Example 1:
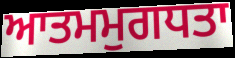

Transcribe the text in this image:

ਆਤਮਮੁਗਧਤਾ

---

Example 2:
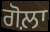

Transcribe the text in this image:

ਗੋਲ਼ਾ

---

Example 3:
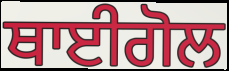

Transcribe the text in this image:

ਥਾਈਗੋਲ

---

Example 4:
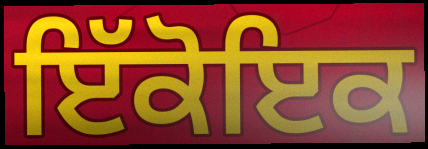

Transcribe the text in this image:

ਇੱਕੋਇਕ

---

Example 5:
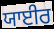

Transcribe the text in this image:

ਯਾਈਰ